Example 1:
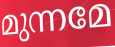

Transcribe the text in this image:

മുന്നമേ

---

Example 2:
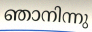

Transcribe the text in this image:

ഞാനിന്നു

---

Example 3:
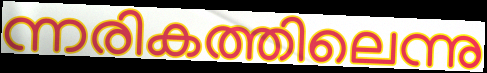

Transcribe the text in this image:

ന്നരികത്തിലെന്നു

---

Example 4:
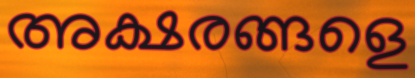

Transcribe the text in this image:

അക്ഷരങ്ങളെ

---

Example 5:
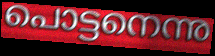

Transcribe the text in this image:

പൊട്ടനെന്നു